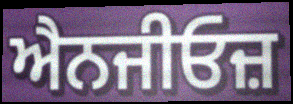
ਐਨਜੀਓਜ਼